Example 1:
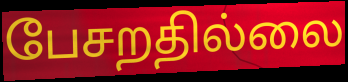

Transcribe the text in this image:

பேசறதில்லை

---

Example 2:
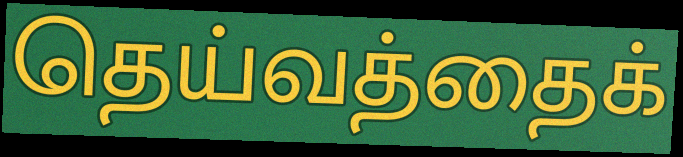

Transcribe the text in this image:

தெய்வத்தைக்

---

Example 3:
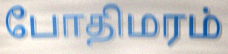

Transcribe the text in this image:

போதிமரம்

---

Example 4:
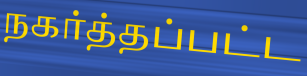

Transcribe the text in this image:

நகர்த்தப்பட்ட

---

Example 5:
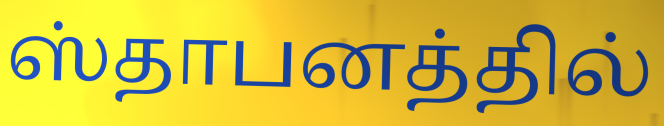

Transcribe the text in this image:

ஸ்தாபனத்தில்